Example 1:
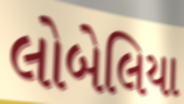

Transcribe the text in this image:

લોબેલિયા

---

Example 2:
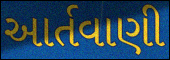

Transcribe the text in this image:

આર્તવાણી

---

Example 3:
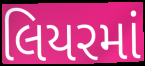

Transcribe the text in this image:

લિયરમાં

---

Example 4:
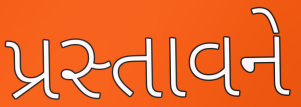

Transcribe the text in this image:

પ્રસ્તાવને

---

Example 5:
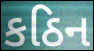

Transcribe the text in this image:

કઠિન